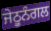
ਜੇਠੂਨੰਗਲ